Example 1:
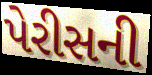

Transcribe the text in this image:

પેરીસની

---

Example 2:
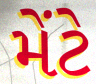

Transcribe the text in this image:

મેંટે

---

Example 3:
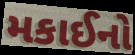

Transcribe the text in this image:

મકાઈનો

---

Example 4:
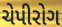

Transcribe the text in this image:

ચેપીરોગ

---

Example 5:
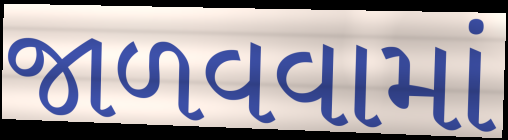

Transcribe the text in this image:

જાળવવામાં